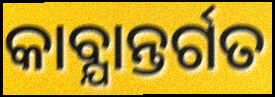
କାବ୍ଯାନ୍ତର୍ଗତ